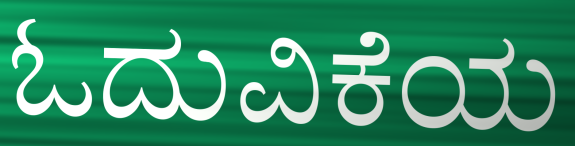
ಓದುವಿಕೆಯ